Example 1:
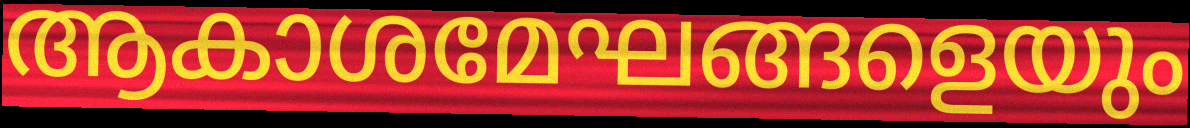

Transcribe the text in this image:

ആകാശമേഘങ്ങളെയും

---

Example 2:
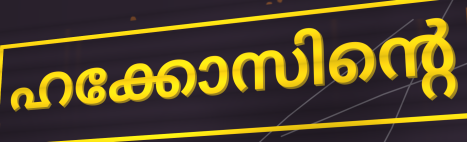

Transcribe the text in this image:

ഹക്കോസിന്റെ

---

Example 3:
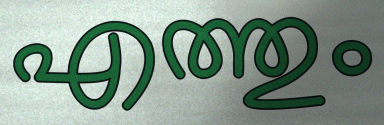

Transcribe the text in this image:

എത്തും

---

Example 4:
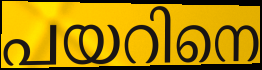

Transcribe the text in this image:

പയറിനെ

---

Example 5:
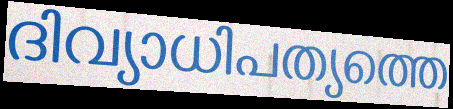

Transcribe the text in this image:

ദിവ്യാധിപത്യത്തെ